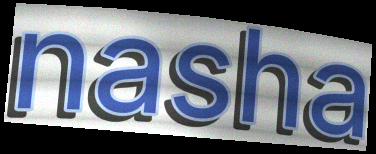
nasha